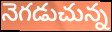
నెగడుచున్న